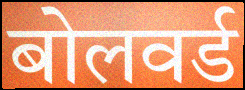
बोलवर्ड